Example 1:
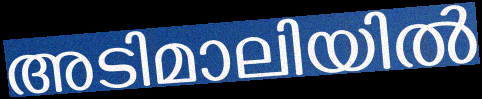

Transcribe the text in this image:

അടിമാലിയിൽ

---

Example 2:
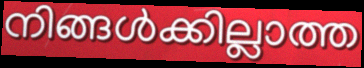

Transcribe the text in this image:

നിങ്ങൾക്കില്ലാത്ത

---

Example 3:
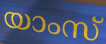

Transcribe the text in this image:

യാംസ്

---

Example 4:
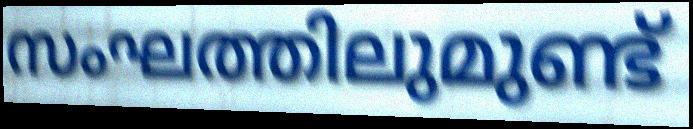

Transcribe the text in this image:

സംഘത്തിലുമുണ്ട്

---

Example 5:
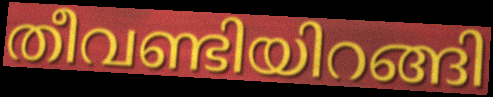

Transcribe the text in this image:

തീവണ്ടിയിറങ്ങി